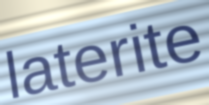
laterite